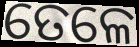
ତେଳେ